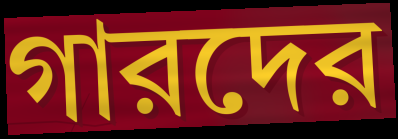
গারদের